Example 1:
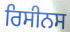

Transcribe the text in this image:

ਰਿਸੀਨਸ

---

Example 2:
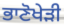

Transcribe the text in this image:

ਭਾਣੋਖੇੜੀ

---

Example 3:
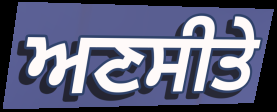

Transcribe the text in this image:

ਅਣਸੀਤੇ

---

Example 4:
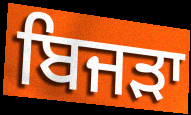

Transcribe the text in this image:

ਬਿਜੜਾ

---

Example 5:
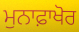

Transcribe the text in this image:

ਮੁਨਾਫ਼ਾਖੋਰ